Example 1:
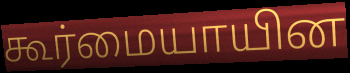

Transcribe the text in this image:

கூர்மையாயின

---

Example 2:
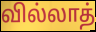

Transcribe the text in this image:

வில்லாத்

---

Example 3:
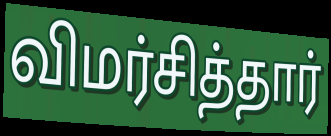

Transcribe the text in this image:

விமர்சித்தார்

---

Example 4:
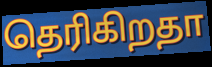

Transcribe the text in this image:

தெரிகிறதா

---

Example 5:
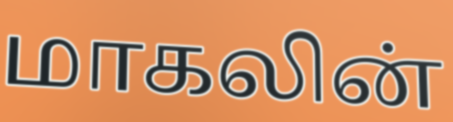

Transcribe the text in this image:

மாகலின்